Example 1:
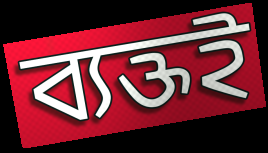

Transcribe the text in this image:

ব্যক্তই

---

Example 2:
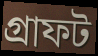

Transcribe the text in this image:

গ্রাফট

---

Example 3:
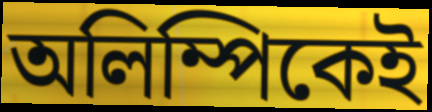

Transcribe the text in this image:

অলিম্পিকেই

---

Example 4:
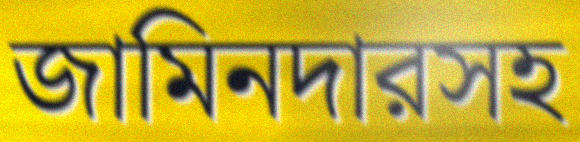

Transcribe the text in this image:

জামিনদারসহ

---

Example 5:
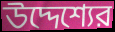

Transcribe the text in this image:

উদ্দেশ্যের